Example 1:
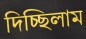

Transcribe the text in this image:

দিচ্ছিলাম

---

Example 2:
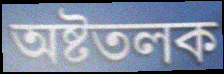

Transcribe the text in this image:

অষ্টতলক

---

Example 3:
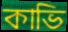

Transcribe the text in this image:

কাভি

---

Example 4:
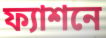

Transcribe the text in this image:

ফ্যাশনে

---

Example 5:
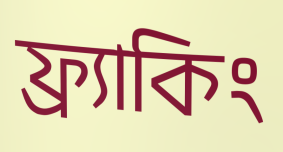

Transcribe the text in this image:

ফ্র্যাকিং